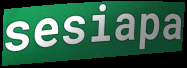
sesiapa